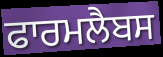
ਫਾਰਮਲੈਬਸ